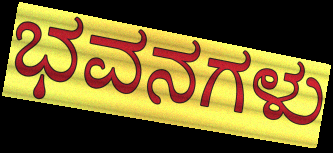
ಭವನಗಳು